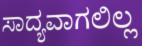
ಸಾದ್ಯವಾಗಲಿಲ್ಲ